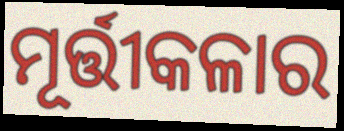
ମୂର୍ତ୍ତୀକଳାର